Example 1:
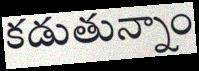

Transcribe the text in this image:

కడుతున్నాం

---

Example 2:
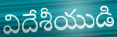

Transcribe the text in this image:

విదేశీయుడి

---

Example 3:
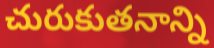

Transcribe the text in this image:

చురుకుతనాన్ని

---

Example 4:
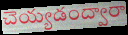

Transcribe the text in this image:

చెయ్యడంద్వారా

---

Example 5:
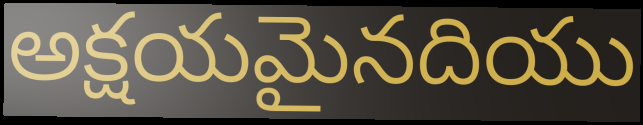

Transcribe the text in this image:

అక్షయమైనదియు